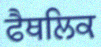
ਫੈਥਲਿਕ